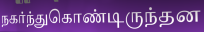
நகர்ந்துகொண்டிருந்தன